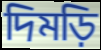
দিমড়ি